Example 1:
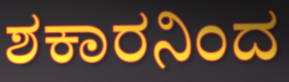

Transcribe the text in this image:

ಶಕಾರನಿಂದ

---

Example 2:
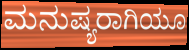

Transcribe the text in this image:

ಮನುಷ್ಯರಾಗಿಯೂ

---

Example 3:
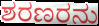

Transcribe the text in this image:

ಶರಣರನು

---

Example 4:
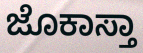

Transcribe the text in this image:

ಜೊಕಾಸ್ತಾ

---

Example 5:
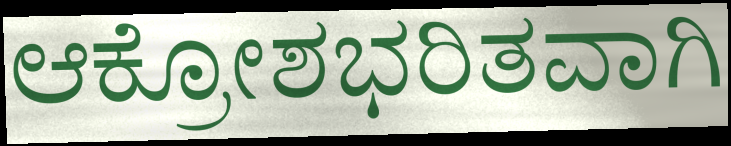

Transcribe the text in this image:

ಆಕ್ರೋಶಭರಿತವಾಗಿ